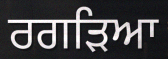
ਰਗੜਿਆ